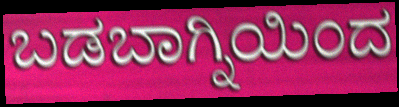
ಬಡಬಾಗ್ನಿಯಿಂದ